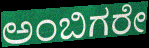
ಅಂಬಿಗರೇ